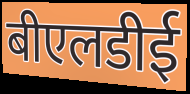
बीएलडीई